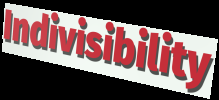
Indivisibility